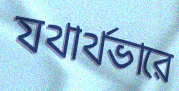
যথাৰ্থভাৱে